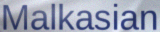
Malkasian